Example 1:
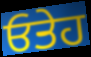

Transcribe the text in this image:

ਓਤੇਹ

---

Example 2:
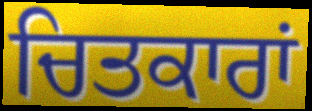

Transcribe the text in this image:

ਚਿਤਕਾਰਾਂ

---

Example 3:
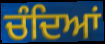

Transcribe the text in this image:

ਚੰਦਿਆਂ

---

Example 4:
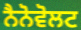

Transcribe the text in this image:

ਨੈਨੋਵੋਲਟ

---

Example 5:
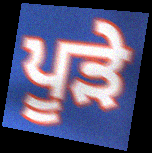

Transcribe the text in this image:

ਪੂੜੇ